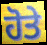
ਹੋਤੇ